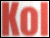
Kol